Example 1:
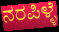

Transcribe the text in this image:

ನರಪಿಳ್ಳೆ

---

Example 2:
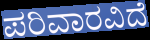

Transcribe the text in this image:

ಪರಿವಾರವಿದೆ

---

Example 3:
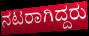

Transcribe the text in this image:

ನಟರಾಗಿದ್ದರು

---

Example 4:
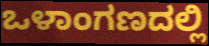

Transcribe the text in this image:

ಒಳಾಂಗಣದಲ್ಲಿ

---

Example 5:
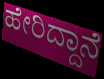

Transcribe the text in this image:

ಹೇರಿದ್ದಾನೆ